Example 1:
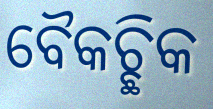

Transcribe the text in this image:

ବୈକଚ୍ଛିକ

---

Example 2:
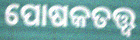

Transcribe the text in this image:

ପୋଷକତତ୍ତ୍ବ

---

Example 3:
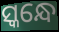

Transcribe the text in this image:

ସ୍କନ୍ଧେ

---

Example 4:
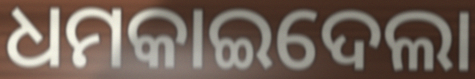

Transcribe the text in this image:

ଧମକାଇଦେଲା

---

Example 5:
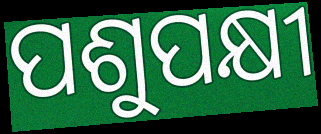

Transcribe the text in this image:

ପଶୁପକ୍ଷୀ